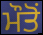
ਮੌਤੋਂ